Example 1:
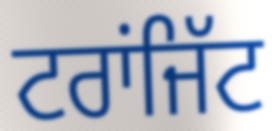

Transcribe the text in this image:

ਟਰਾਂਜਿੱਟ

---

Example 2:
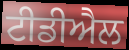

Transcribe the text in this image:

ਟੀਡੀਐਲ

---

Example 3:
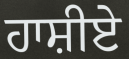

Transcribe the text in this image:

ਹਾਸ਼ੀਏ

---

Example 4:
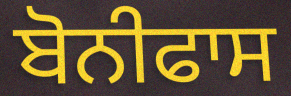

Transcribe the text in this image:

ਬੋਨੀਫਾਸ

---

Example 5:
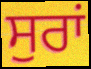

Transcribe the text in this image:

ਸੁਰਾਂ